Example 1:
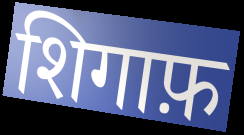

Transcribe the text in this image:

शिगाफ़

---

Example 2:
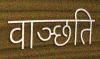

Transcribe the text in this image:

वाञ्छति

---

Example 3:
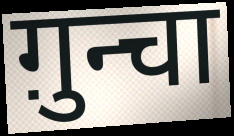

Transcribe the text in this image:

ग़ुन्चा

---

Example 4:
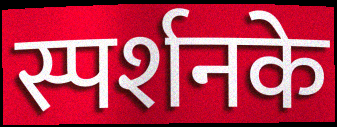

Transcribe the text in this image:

स्पर्शनके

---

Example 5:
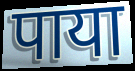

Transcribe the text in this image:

पाया